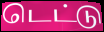
டெட்டு